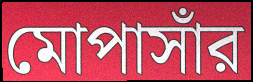
মোপাসাঁর